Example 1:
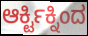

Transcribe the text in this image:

ಆರ್ಕ್ಟಿಕ್ನಿಂದ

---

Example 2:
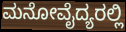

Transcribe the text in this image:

ಮನೋವೈದ್ಯರಲ್ಲಿ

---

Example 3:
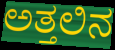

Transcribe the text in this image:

ಅತ್ತಲಿನ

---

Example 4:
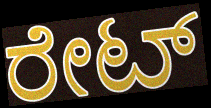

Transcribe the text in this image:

ರೇಟ್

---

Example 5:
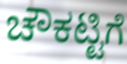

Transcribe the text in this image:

ಚೌಕಟ್ಟಿಗೆ